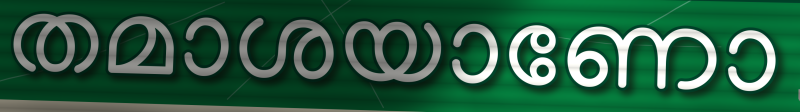
തമാശയാണോ